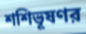
শশিভূষণর